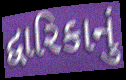
દ્વારિકાનું